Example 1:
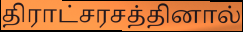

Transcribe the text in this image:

திராட்சரசத்தினால்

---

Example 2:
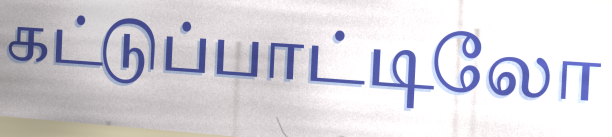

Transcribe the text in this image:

கட்டுப்பாட்டிலோ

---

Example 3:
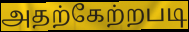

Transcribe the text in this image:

அதற்கேற்றபடி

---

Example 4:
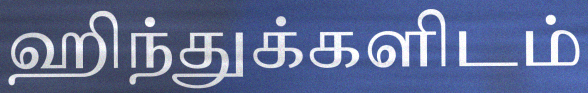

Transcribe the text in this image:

ஹிந்துக்களிடம்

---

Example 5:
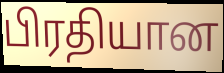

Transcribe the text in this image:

பிரதியான